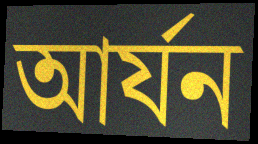
আর্যন